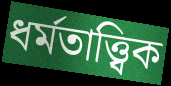
ধর্মতাত্ত্বিক